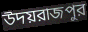
উদয়রাজপুর